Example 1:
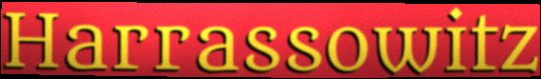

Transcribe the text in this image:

Harrassowitz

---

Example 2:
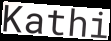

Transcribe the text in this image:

Kathi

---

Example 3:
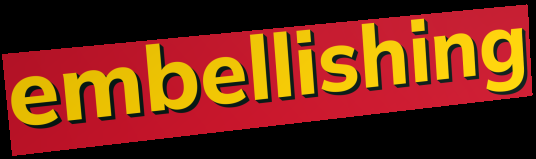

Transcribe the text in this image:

embellishing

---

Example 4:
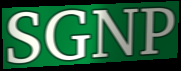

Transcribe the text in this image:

SGNP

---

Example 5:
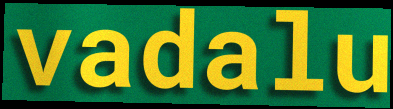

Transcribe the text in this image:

vadalu